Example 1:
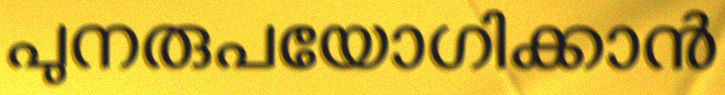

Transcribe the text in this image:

പുനരുപയോഗിക്കാൻ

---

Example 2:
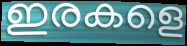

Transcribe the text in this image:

ഇരകളെ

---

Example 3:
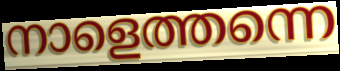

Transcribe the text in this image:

നാളെത്തന്നെ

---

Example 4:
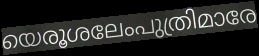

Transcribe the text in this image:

യെരൂശലേംപുത്രിമാരേ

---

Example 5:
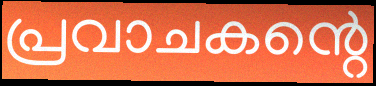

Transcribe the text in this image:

പ്രവാചകന്റെ